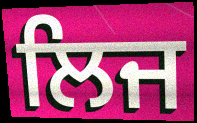
ਲਿਜ